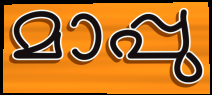
മാപ്പു